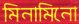
মিনামিনো